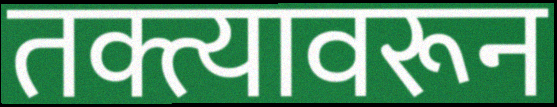
तक्त्यावरून